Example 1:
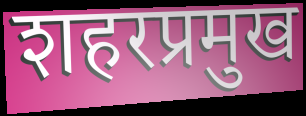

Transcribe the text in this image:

शहरप्रमुख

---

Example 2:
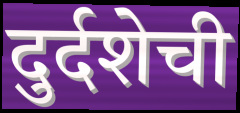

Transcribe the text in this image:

दुर्दशेची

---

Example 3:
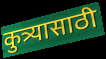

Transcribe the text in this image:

कुत्र्यासाठी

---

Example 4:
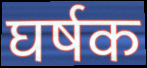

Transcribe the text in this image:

घर्षक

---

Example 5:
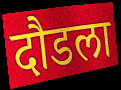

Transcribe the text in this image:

दौडला